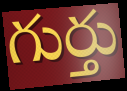
గుర్తు